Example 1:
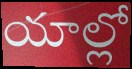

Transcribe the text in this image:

యాల్లో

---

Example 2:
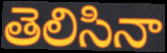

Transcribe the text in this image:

తెలిసినా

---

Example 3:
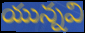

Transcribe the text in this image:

యున్నవి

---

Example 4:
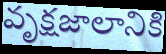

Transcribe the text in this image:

వృక్షజాలానికి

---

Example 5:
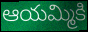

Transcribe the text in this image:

ఆయమ్మికి